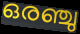
ഒരഞ്ചു